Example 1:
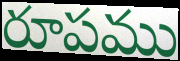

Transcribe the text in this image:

రూపము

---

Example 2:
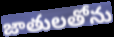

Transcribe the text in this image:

జాతులతోను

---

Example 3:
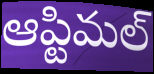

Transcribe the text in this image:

ఆప్టిమల్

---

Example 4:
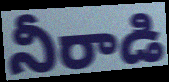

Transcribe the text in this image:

నీరాడి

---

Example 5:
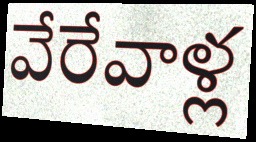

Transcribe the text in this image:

వేరేవాళ్ల